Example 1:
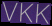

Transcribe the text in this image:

VKK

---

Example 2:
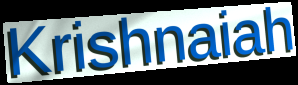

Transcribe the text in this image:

Krishnaiah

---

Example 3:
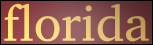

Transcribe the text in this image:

florida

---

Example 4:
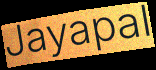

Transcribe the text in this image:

Jayapal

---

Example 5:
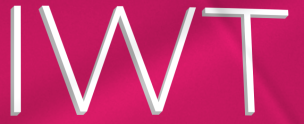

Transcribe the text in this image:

IWT